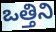
ఒత్తిని